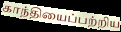
காந்தியைப்பற்றிய